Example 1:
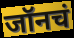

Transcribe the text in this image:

जॉनचं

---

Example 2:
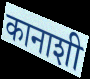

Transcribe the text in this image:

कानाशी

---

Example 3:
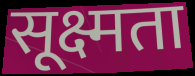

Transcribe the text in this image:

सूक्ष्मता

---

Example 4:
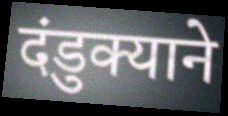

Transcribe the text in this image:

दंडुक्याने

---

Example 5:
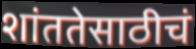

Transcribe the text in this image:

शांततेसाठीचं